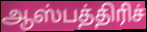
ஆஸ்பத்திரிச்